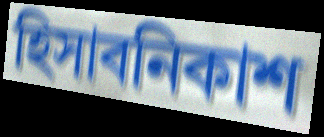
হিসাবনিকাশ